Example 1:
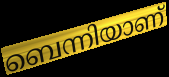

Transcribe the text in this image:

ബെന്നിയാണ്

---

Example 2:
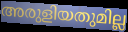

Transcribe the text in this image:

അരുളിയതുമില്ല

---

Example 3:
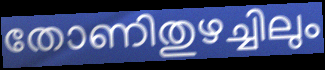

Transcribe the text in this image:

തോണിതുഴച്ചിലും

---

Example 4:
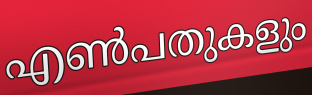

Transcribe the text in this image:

എൺപതുകളും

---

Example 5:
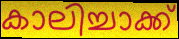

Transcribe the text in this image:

കാലിച്ചാക്ക്